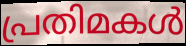
പ്രതിമകൾ